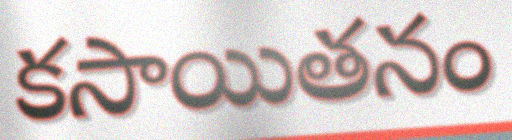
కసాయితనం